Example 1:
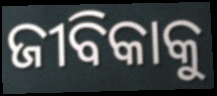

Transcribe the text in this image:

ଜୀବିକାକୁ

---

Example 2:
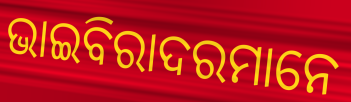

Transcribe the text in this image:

ଭାଇବିରାଦରମାନେ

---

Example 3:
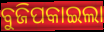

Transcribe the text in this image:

ବୁଜିପକାଇଲା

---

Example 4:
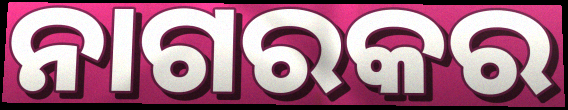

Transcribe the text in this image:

ନାଗରକର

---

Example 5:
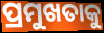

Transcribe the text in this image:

ପ୍ରମୁଖତାକୁ